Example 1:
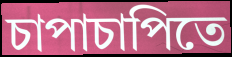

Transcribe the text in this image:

চাপাচাপিতে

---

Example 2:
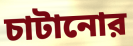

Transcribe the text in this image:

চাটানোর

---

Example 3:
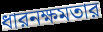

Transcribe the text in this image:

ধারনক্ষমতার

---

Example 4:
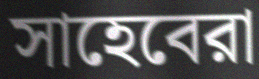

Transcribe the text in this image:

সাহেবেরা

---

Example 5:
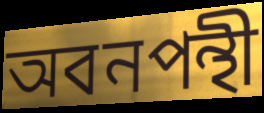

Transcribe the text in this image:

অবনপন্থী